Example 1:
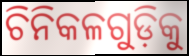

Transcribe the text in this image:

ଚିନିକଳଗୁଡ଼ିକୁ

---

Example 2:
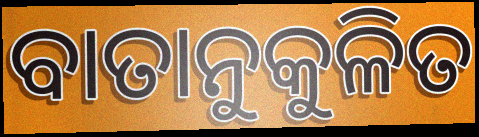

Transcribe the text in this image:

ବାତାନୁକୁଳିତ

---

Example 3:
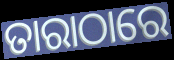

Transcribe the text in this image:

ତାରାଠାରେ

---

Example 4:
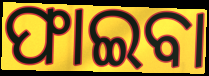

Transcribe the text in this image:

ଫାଇବା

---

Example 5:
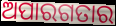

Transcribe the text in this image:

ଅପାରଗତାର